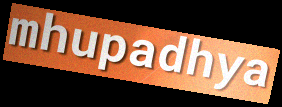
mhupadhya